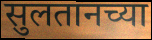
सुलतानच्या